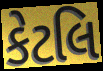
કેટલિ